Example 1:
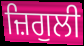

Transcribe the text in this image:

ਜ਼ਿਗੁਲੀ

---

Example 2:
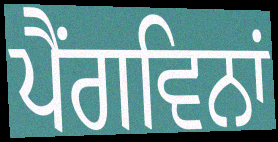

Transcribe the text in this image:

ਪੈਂਗਵਿਨਾਂ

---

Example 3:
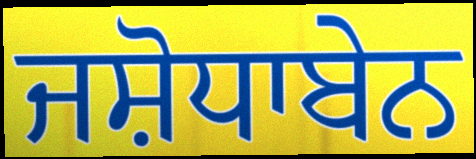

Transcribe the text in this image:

ਜਸ਼ੋਧਾਬੇਨ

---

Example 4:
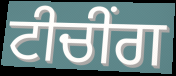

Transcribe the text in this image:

ਟੀਚੀਂਗ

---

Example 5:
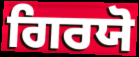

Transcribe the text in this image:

ਗਿਰਯੋ